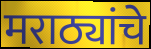
मराठ्यांचे